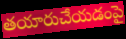
తయారుచేయడంపై